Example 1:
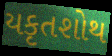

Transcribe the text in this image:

યકૃતશોથ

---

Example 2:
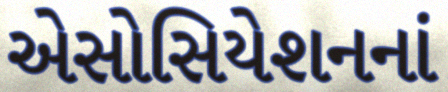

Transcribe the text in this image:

એસોસિયેશનનાં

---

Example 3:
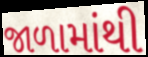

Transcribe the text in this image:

જાળામાંથી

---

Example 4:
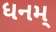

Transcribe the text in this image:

ધનમ્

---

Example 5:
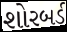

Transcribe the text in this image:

શોરબર્ડ